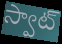
స్వాట్